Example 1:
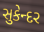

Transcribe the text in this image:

સુકેન્દર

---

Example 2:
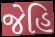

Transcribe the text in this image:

જેહિ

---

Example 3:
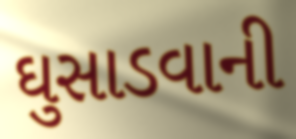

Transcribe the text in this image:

ઘુસાડવાની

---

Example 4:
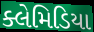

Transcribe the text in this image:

ક્લેમિડિયા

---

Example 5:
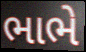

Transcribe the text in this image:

ભાભે